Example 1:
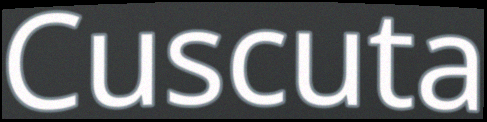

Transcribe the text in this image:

Cuscuta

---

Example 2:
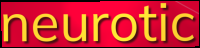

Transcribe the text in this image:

neurotic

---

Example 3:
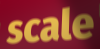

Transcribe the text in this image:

scale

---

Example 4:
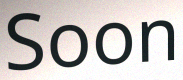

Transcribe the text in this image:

Soon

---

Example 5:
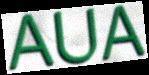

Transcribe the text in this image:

AUA